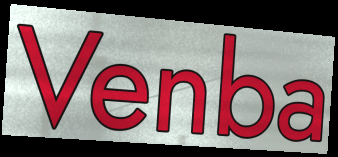
Venba